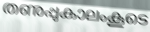
തണുപ്പുകാലംകൂടെ